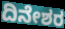
ದಿನೇಶರ